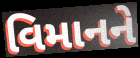
વિમાનને